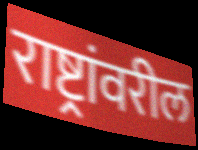
राष्ट्रांवरील